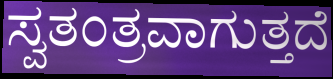
ಸ್ವತಂತ್ರವಾಗುತ್ತದೆ